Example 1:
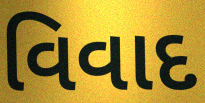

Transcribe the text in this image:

વિવાદ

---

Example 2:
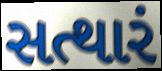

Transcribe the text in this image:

સત્થારં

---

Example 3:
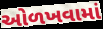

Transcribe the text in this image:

ઓળખવામાં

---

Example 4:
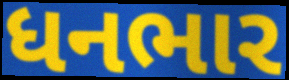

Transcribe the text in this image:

ધનભાર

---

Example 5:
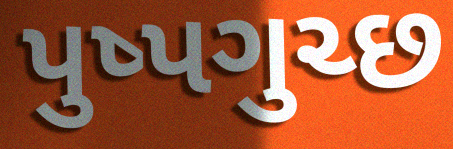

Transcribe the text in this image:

પુષ્પગુચ્છ